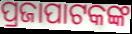
ପ୍ରଜାପାଟକଙ୍କ